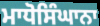
ਮਾਧੋਸਿੰਘਾਨਾ